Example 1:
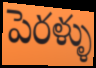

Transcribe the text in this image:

పెరళ్ళు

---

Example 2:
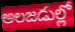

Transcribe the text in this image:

అలజడుల్లో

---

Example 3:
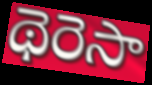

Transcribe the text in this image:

థెరెసా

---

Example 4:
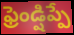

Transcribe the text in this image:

ఫ్రెండ్షిప్పే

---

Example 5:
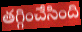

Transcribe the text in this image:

తగ్గించేసింది